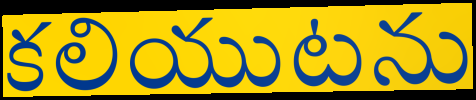
కలియుటను